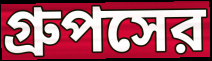
গ্রুপসের